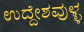
ಉದ್ದೇಶವುಳ್ಳ